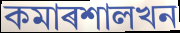
কমাৰশালখন